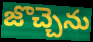
జొచ్చెను